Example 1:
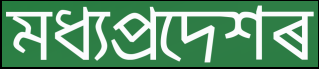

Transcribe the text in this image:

মধ্যপ্ৰদেশৰ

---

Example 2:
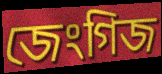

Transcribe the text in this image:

জেংগিজ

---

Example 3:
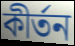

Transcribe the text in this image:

কীৰ্তন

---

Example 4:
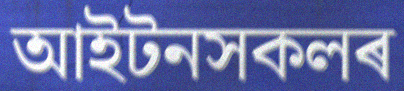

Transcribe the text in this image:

আইটনসকলৰ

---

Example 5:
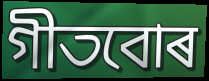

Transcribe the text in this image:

গীতবোৰ